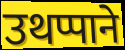
उथप्पाने